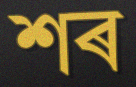
শৰ